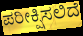
ಪರೀಕ್ಷಿಸಲಿದೆ